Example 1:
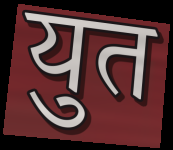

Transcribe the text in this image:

युत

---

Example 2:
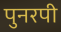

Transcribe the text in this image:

पुनरपी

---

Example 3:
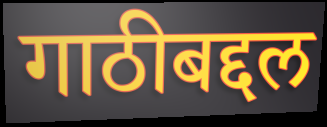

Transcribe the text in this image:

गाठीबद्दल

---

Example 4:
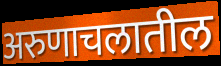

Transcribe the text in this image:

अरुणाचलातील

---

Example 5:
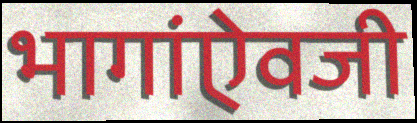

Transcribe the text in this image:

भागांऐवजी